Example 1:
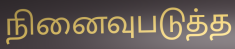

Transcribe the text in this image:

நினைவுபடுத்த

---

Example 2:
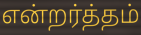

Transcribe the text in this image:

என்றர்த்தம்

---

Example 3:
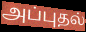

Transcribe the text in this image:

அப்புதல்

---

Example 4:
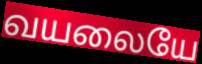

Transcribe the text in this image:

வயலையே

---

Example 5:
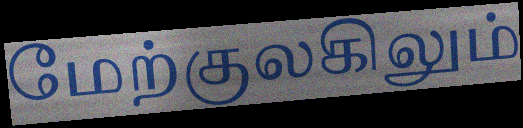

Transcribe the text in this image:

மேற்குலகிலும்